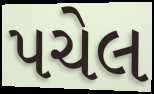
પચેલ